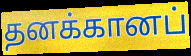
தனக்கானப்